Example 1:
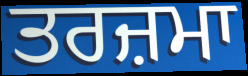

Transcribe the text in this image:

ਤਰਜ਼ਮਾ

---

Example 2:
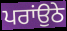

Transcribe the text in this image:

ਪਰਾਂਉਠੇ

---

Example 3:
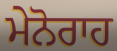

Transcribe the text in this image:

ਮੇਨੋਰਾਹ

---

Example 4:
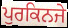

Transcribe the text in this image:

ਪੁਰਕਿਨਜੇ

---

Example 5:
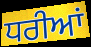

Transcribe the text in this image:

ਧਰੀਆਂ